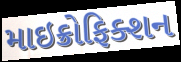
માઇક્રોફિક્શન